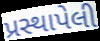
પ્રસ્થાપેલી